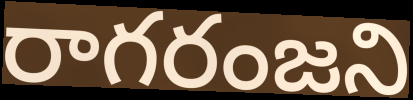
రాగరంజని